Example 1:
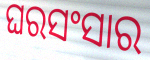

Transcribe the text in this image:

ଘରସଂସାର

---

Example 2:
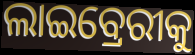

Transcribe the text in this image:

ଲାଇବ୍ରେରୀକୁ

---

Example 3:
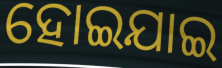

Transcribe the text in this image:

ହୋଇଯାଇ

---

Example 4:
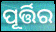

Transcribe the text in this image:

ପୂର୍ତ୍ତିର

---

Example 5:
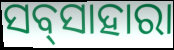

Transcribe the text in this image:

ସବ୍‌ସାହାରା